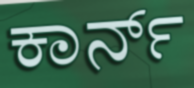
ಕಾರ್ನ್